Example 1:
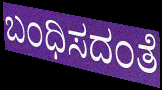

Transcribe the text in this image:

ಬಂಧಿಸದಂತೆ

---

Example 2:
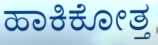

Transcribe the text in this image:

ಹಾಕಿಕೋತ್ತ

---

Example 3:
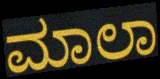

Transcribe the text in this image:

ಮಾಲಾ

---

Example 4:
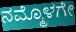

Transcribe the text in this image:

ನಮ್ಮೊಳಗೇ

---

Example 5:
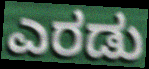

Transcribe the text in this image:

ಎರಡು